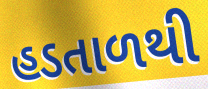
હડતાળથી